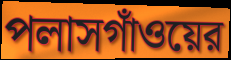
পলাসগাঁওয়ের